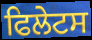
ਫਿਲੇਟਸ